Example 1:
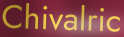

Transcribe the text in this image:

Chivalric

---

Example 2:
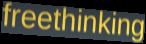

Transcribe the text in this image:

freethinking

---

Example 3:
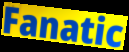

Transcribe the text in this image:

Fanatic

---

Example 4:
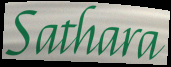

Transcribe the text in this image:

Sathara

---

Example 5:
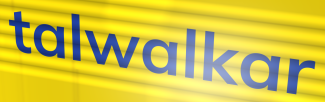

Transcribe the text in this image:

talwalkar